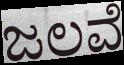
ಜಲವೆ